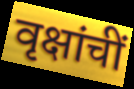
वृक्षांचीं